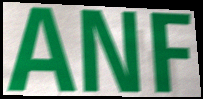
ANF